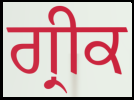
ਗ੍ਰੀਕ